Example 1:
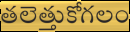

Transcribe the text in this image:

తలెత్తుకోగలం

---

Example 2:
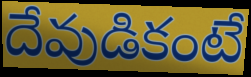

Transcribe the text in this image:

దేవుడికంటే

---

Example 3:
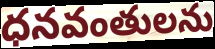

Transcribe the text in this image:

ధనవంతులను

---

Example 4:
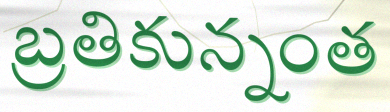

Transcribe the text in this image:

బ్రతికున్నంత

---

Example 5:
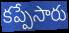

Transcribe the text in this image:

కప్పేసారు